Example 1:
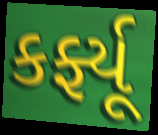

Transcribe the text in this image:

કર્ફ્યૂ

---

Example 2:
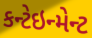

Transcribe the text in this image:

કન્ટેઇન્મેન્ટ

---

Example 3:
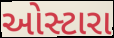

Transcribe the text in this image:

ઓસ્ટારા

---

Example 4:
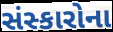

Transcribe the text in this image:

સંસ્કારોના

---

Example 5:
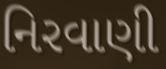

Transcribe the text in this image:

નિરવાણી